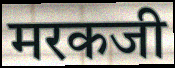
मरकजी